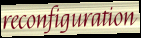
reconfiguration